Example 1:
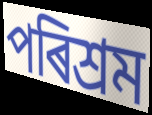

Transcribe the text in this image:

পৰিশ্ৰম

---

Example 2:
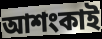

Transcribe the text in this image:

আশংকাই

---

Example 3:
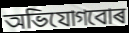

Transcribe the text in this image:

অভিযোগবোৰ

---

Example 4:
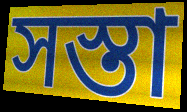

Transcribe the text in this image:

সস্তা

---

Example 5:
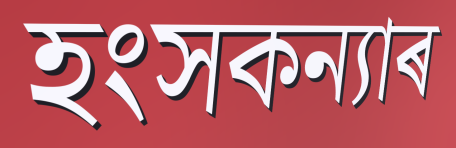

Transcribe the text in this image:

হংসকন্যাৰ